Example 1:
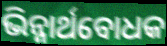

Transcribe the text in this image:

ଭିନ୍ନାର୍ଥବୋଧକ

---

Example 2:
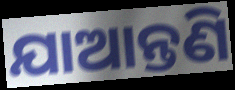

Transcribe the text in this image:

ଯାଆନ୍ତଣି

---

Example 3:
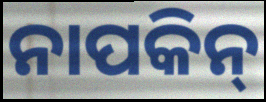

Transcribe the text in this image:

ନାପକିନ୍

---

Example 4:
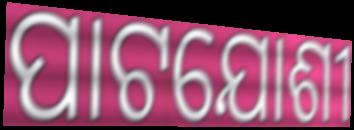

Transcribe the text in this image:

ପାଟଯୋଶୀ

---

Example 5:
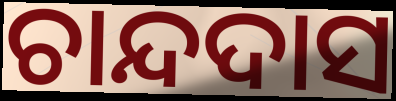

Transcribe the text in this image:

ଚାନ୍ଦଦାସ